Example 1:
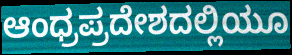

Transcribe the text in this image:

ಆಂಧ್ರಪ್ರದೇಶದಲ್ಲಿಯೂ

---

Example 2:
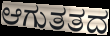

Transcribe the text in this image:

ಆಗುತತದ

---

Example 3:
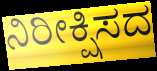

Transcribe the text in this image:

ನಿರೀಕ್ಷಿಸದ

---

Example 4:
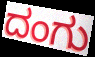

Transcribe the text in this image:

ದಂಗು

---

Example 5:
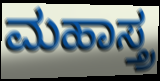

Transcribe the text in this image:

ಮಹಾಸ್ತ್ರ